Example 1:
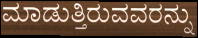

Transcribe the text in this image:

ಮಾಡುತ್ತಿರುವವರನ್ನು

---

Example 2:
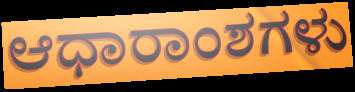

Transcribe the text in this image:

ಆಧಾರಾಂಶಗಳು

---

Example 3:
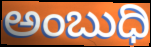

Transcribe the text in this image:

ಅಂಬುಧಿ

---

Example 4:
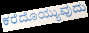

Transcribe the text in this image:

ಕರೆದೊಯ್ಯುವುದು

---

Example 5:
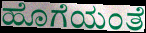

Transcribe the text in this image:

ಹೊಗೆಯಂತೆ